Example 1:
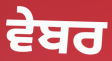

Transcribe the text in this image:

ਵੇਬਰ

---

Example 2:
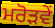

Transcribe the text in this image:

ਮਰੋੜਵੇਂ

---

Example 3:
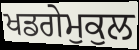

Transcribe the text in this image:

ਖਡਗੇਮੁਕੁਲ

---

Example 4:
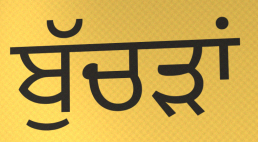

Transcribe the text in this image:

ਬੁੱਚੜਾਂ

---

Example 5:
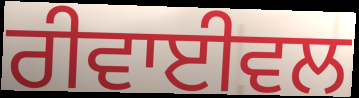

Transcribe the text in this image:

ਰੀਵਾਈਵਲ